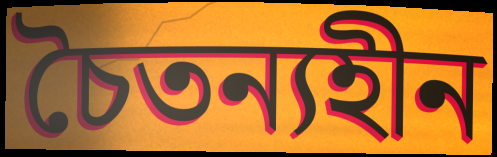
চৈতন্যহীন